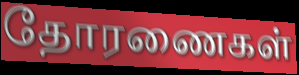
தோரணைகள்